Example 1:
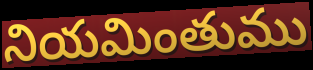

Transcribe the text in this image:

నియమింతుము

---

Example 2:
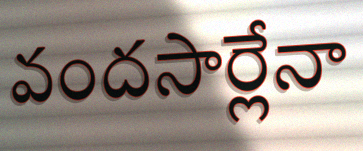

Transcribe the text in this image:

వందసార్లేనా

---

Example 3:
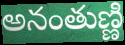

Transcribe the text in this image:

అనంతుణ్ణి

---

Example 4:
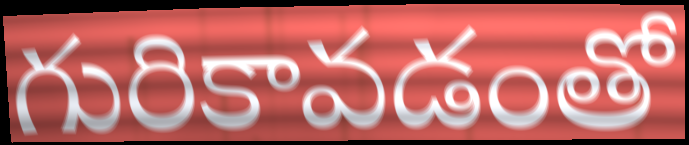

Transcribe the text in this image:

గురికావడంతో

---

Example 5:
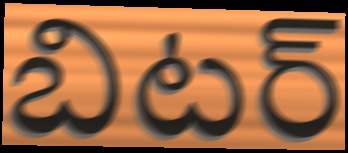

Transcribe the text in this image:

బిటర్